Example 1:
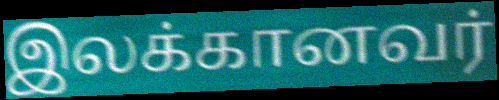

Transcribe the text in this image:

இலக்கானவர்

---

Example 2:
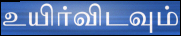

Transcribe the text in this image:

உயிர்விடவும்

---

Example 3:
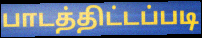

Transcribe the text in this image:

பாடத்திட்டப்படி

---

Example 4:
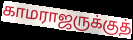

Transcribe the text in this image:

காமராஜருக்குத்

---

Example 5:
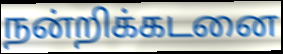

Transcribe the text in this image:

நன்றிக்கடனை